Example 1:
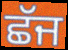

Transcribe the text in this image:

ਛੱਜ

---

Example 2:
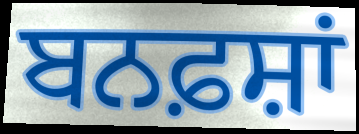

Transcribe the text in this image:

ਬਨਫ਼ਸ਼ਾਂ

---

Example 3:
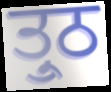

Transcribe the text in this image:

ਤ੍ਰੁਠ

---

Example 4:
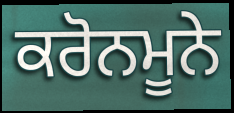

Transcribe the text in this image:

ਕਰੋਨਮੂਨੇ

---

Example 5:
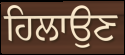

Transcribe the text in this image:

ਹਿਲਾਉਣ